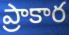
ప్రాకార